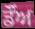
ਡੌਂਅ